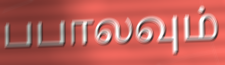
பபாலவும்